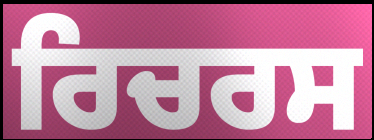
ਰਿਚਰਸ